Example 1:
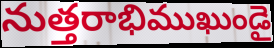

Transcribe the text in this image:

నుత్తరాభిముఖుండై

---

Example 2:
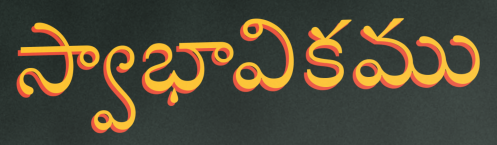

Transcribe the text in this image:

స్వాభావికము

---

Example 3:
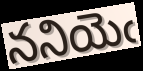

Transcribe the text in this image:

ననియెఁ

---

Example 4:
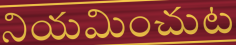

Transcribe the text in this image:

నియమించుట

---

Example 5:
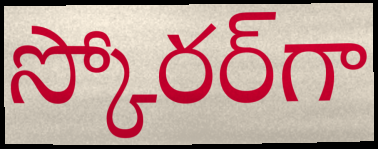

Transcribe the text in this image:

స్కోరర్‌గా